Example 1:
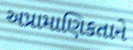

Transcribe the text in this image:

અપ્રામાણિકતાને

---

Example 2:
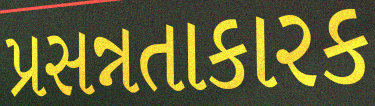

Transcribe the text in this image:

પ્રસન્નતાકારક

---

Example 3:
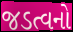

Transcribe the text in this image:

જડત્વનો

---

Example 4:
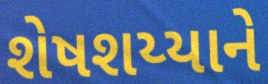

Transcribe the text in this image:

શેષશય્યાને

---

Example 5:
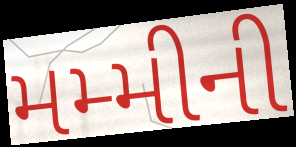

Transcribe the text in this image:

મમ્મીની